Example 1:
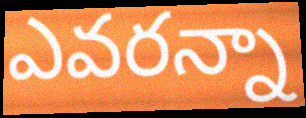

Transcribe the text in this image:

ఎవరన్నా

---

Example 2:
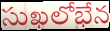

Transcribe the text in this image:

సుఖలోభేన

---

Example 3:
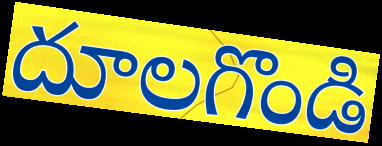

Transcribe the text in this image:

దూలగొండి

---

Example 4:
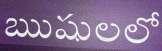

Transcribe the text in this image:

ఋషులలో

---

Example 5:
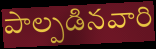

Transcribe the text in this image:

పాల్పడినవారి